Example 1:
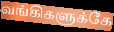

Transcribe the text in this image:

வங்கிகளுக்கே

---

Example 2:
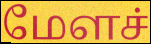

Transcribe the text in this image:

மேளச்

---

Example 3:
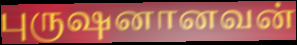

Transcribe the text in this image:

புருஷனானவன்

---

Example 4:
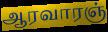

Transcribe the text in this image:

ஆரவாரஞ்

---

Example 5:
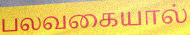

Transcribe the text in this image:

பலவகையால்